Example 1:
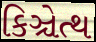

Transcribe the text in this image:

કિઞ્ચેત્થ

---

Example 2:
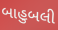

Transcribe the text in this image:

બાહુબલી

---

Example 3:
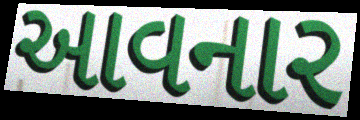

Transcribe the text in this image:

આવનાર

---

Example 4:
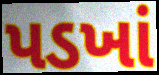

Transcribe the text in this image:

પડખાં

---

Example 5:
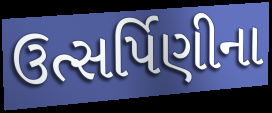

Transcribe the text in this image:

ઉત્સર્પિણીના